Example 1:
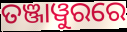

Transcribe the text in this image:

ତଞ୍ଜାୱୁରରେ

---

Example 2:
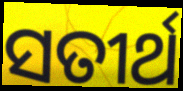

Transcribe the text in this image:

ସତୀର୍ଥ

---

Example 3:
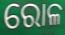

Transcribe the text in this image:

ରୋଳ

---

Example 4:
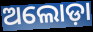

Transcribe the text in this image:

ଅଲୋଡ଼ା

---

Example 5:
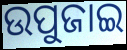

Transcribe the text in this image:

ଉପୁଜାଇ